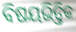
ବିଷୟଭିତ୍ତିକ